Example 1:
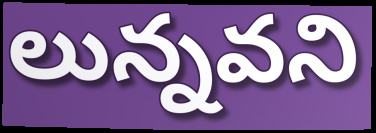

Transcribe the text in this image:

లున్నవని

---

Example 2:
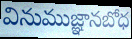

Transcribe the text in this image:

వినుముజ్ఞానబోధ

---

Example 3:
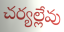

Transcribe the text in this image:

చర్యల్లేవు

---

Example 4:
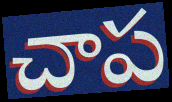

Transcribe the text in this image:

చాప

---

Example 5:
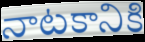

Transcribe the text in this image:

నాటకానికి